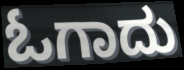
ಓಗಾದು